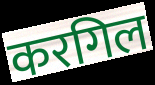
करगिल